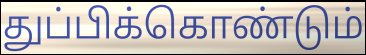
துப்பிக்கொண்டும்